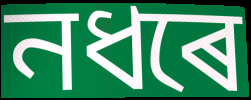
নধৰে